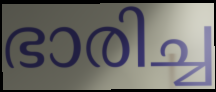
ഭാരിച്ച